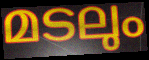
മടലും